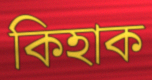
কিহাক